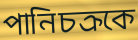
পানিচক্রকে